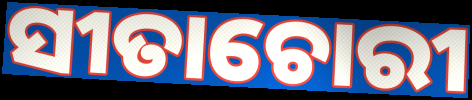
ସୀତାଚୋରୀ